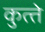
कुत्‍ते